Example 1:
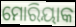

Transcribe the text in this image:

ମୋରିୟାକ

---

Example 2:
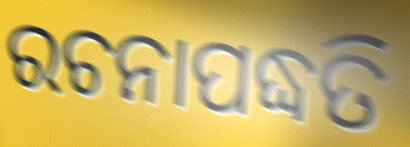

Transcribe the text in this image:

ରଚନାପଦ୍ଧତି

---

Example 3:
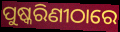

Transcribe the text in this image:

ପୁଷ୍କରିଣୀଠାରେ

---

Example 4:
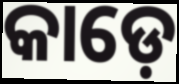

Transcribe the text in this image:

କାଡ଼େ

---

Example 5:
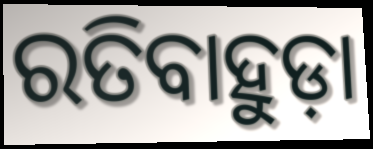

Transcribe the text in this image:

ରତିବାହୁଡ଼ା